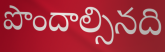
పొందాల్సినది